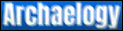
Archaelogy